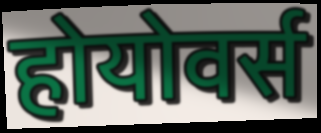
होयोवर्स